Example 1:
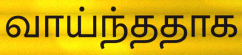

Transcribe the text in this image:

வாய்ந்ததாக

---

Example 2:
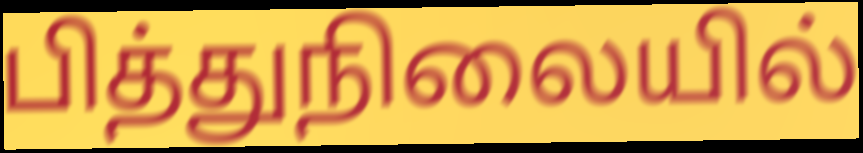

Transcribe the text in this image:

பித்துநிலையில்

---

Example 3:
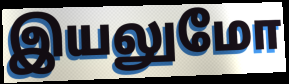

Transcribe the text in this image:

இயலுமோ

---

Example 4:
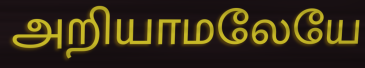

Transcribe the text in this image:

அறியாமலேயே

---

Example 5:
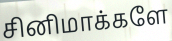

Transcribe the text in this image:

சினிமாக்களே